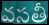
వసతీ